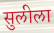
सुलीला